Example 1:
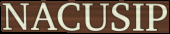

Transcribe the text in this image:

NACUSIP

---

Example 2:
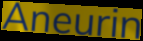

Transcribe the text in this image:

Aneurin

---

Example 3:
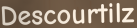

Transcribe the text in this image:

Descourtilz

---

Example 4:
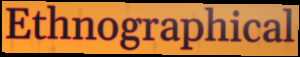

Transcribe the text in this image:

Ethnographical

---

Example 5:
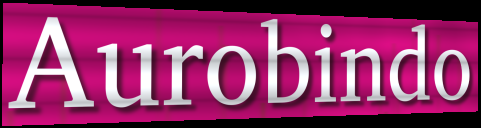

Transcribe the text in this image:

Aurobindo